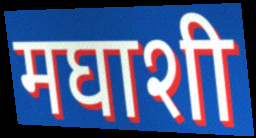
मघाशी